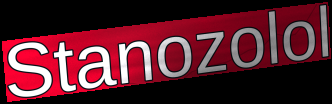
Stanozolol